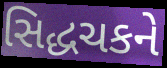
સિદ્ધચકને